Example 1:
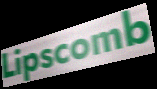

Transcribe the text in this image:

Lipscomb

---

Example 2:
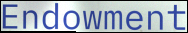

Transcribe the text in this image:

Endowment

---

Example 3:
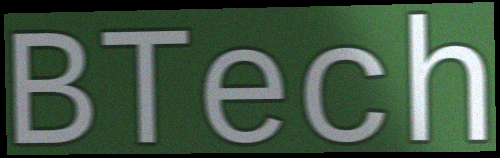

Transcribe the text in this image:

BTech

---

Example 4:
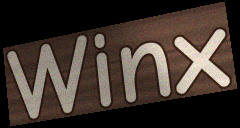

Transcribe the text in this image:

Winx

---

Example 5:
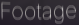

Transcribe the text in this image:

Footage